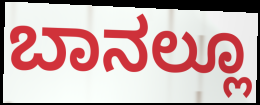
ಬಾನಲ್ಲೂ